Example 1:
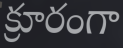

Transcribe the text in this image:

క్రూరంగా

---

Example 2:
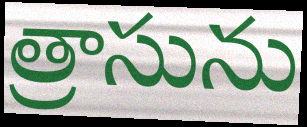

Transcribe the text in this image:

త్రాసును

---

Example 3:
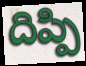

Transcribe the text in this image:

దిప్పి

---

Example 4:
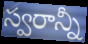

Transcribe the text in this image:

స్వరాన్నీ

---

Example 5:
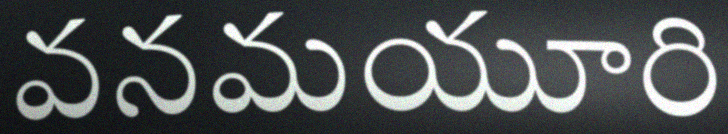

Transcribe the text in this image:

వనమయూరి